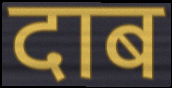
दाब